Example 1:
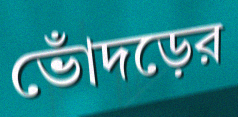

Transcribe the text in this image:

ভোঁদড়ের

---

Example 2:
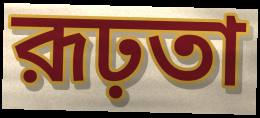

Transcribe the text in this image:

রূঢ়তা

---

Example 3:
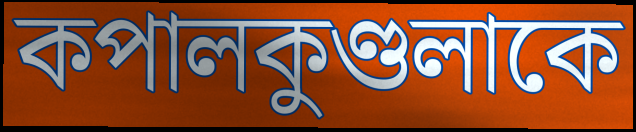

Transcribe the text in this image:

কপালকুণ্ডলাকে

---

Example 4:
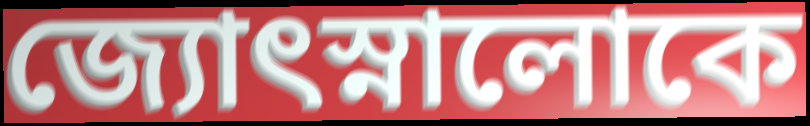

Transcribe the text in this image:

জ্যোৎস্নালোকে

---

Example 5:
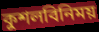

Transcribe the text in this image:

কুশলবিনিময়